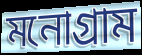
মনোগ্রাম